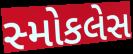
સ્મોકલેસ